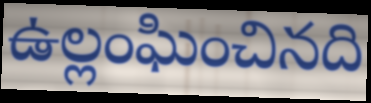
ఉల్లంఘించినది